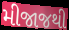
મીજાજથી